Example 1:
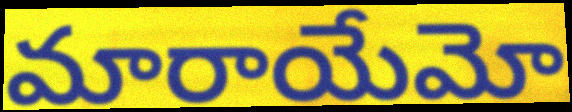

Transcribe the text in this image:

మారాయేమో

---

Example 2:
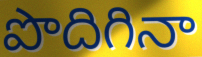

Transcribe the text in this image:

పొదిగినా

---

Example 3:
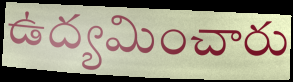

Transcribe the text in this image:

ఉద్యమించారు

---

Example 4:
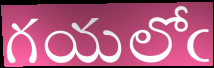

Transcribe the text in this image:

గయలోఁ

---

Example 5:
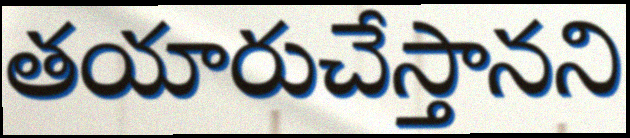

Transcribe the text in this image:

తయారుచేస్తానని